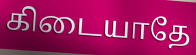
கிடையாதே